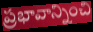
ప్రభావాన్నించి